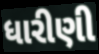
ધારીણી